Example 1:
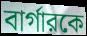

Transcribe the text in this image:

বার্গারকে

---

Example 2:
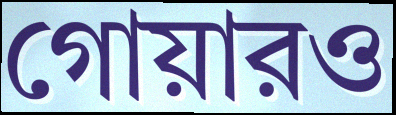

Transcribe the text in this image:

গোয়ারও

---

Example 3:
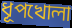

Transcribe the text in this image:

ধূপখোলা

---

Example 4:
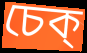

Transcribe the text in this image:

চেক্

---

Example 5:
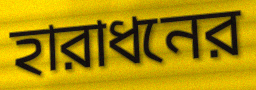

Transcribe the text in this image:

হারাধনের